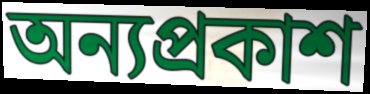
অন্যপ্রকাশ